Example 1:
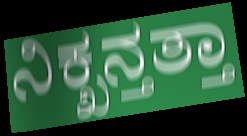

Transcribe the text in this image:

ನಿಕ್ಖನ್ತತ್ತಾ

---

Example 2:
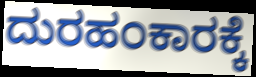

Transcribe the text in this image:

ದುರಹಂಕಾರಕ್ಕೆ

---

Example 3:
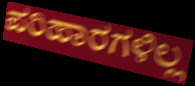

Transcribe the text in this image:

ಪರಿಹಾರಗಳಿಲ್ಲ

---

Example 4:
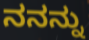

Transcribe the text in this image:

ನನನ್ನು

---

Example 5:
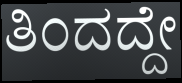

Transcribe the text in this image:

ತಿಂದದ್ದೇ